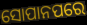
ସୋପାନପରେ